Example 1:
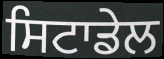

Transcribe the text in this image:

ਸਿਟਾਡੇਲ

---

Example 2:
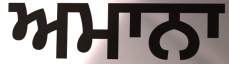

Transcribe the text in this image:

ਅਮਾਨਾ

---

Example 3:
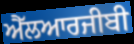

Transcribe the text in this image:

ਐੱਲਆਰਜੀਬੀ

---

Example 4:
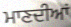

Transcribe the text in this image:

ਮਾਣਦੀਆਂ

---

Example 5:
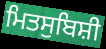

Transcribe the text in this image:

ਮਿਤਸੁਬਿਸ਼ੀ